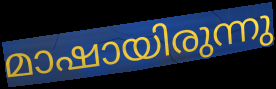
മാഷായിരുന്നു